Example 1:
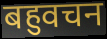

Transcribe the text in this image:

बहुवचन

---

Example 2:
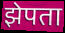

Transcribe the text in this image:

झेपता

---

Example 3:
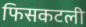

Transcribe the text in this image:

फिसकटली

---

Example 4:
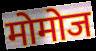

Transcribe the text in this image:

मोमोज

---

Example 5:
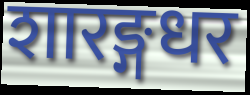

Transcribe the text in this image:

शारङ्गधर